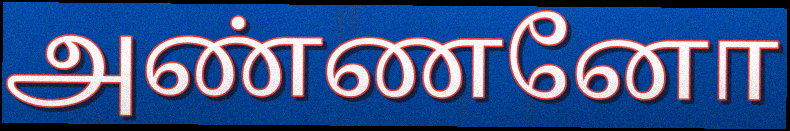
அண்ணனோ